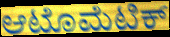
ಆಟೊಮೆಟಿಕ್